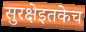
सुरक्षेइतकेच